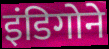
इंडिगोने